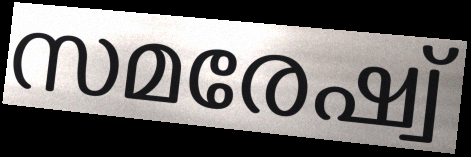
സമരേഷ്വ്